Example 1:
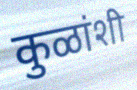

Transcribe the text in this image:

कुळांशी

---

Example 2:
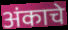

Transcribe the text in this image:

अंकाचे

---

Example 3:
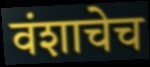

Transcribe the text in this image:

वंशाचेच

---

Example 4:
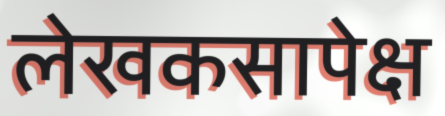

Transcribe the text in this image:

लेखकसापेक्ष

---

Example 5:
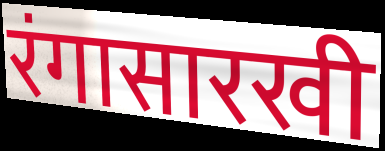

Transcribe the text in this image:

रंगासारखी